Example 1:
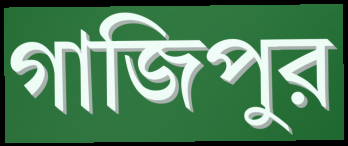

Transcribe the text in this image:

গাজিপুর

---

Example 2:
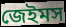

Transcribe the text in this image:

জেইমস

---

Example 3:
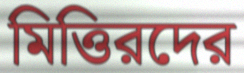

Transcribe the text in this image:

মিত্তিরদের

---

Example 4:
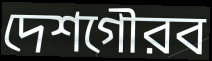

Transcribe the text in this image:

দেশগৌরব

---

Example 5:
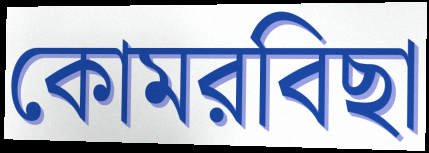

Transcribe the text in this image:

কোমরবিছা